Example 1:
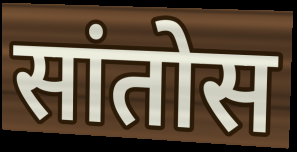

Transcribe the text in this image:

सांतोस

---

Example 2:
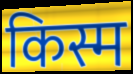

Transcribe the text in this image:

किस्‍म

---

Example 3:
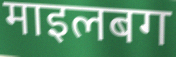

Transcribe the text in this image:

माइलबग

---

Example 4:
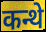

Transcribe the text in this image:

कन्थे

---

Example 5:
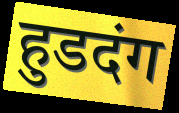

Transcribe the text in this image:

हुडदंग